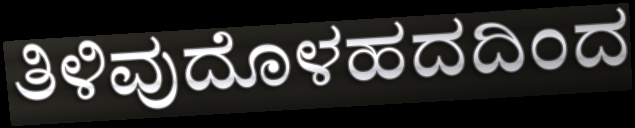
ತಿಳಿವುದೊಳಹದದಿಂದ